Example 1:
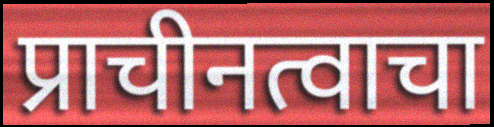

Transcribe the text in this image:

प्राचीनत्वाचा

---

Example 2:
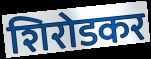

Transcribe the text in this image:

शिरोडकर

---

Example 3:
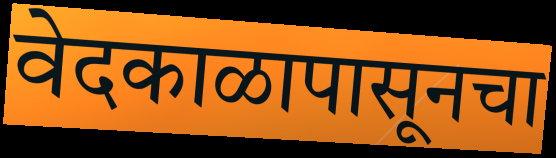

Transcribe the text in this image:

वेदकाळापासूनचा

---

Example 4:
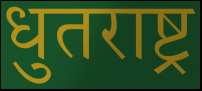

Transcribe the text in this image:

धुतराष्ट्र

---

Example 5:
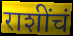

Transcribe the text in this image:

राशींचं